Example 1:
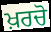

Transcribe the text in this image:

ਖ਼ਰਚੋ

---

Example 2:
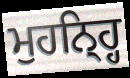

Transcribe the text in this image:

ਮੁਹਨ੍ਹ੍ਹਿ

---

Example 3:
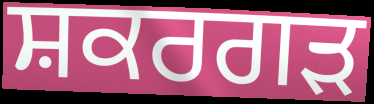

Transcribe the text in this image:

ਸ਼ਕਰਗੜ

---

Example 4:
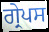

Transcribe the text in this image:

ਗ੍ਰੇਪਸ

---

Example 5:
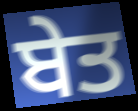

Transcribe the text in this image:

ਬੇਤ